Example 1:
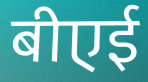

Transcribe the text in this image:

बीएई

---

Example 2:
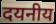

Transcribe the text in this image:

दयनीय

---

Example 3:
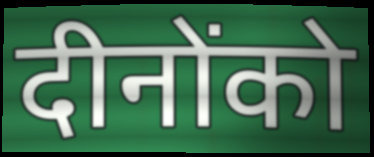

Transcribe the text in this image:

दीनोंको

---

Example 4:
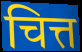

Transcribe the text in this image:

चित्त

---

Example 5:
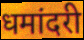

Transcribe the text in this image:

धमांदरी